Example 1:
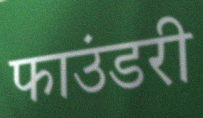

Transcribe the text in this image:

फाउंडरी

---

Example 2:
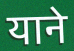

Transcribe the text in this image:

याने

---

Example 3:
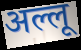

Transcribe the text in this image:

अल्लू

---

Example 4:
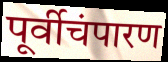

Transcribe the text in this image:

पूर्वीचंपारण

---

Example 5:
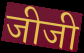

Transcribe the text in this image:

जीजी